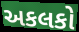
અકલકો